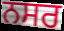
ਨਸਰ